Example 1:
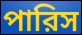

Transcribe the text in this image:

পারিস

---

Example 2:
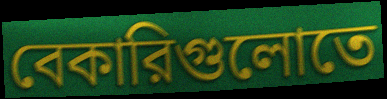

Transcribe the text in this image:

বেকারিগুলোতে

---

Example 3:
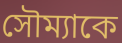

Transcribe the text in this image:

সৌম্যাকে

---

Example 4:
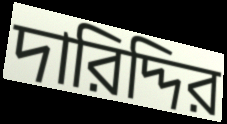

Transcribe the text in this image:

দারিদ্দির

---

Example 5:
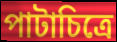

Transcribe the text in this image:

পাটাচিত্রে